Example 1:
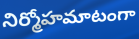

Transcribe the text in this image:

నిర్మోహమాటంగా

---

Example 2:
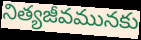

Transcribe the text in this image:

నిత్యజీవమునకు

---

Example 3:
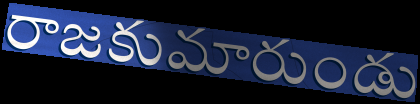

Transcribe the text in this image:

రాజకుమారుండు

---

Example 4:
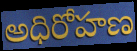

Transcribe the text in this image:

అధిరోహణ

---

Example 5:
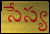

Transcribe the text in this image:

సేస్య